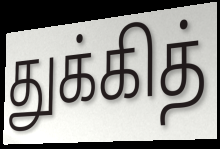
துக்கித்